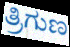
ತ್ರಿಗುಣ